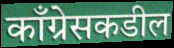
काँग्रेसकडील